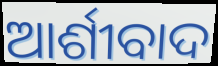
ଆର୍ଶୀବାଦ